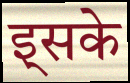
इ्सके